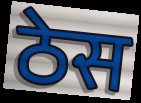
ठेस